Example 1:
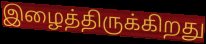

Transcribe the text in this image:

இழைத்திருக்கிறது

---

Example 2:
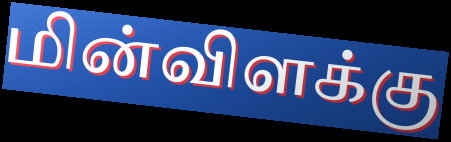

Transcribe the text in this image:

மின்விளக்கு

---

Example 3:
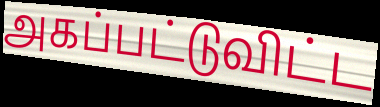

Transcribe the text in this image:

அகப்பட்டுவிட்ட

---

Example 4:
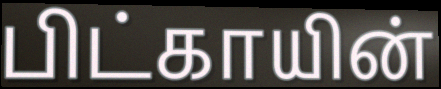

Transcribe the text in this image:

பிட்காயின்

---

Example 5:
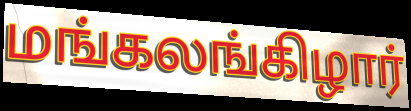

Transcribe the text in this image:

மங்கலங்கிழார்